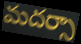
మదర్సా